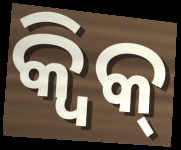
କ୍ୱିକ୍